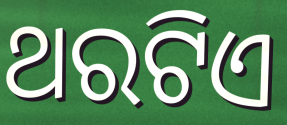
ଥରଟିଏ